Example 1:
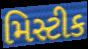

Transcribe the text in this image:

મિસ્ટીક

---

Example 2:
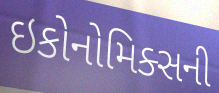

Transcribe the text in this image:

ઇકોનોમિક્સની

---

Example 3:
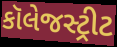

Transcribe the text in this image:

કૉલેજસ્ટ્રીટ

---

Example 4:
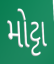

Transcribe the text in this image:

મોટ્ટા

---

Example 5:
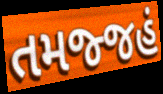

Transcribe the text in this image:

તમજ્જહં